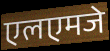
एलएमजे